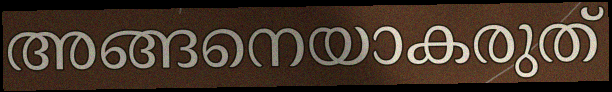
അങ്ങനെയാകരുത്